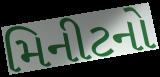
મિનીટનો